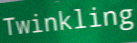
Twinkling